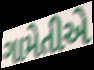
ગામેતીએ